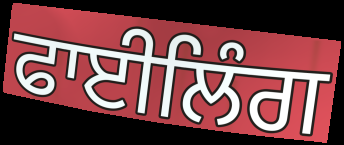
ਫਾਈਲਿੰਗ